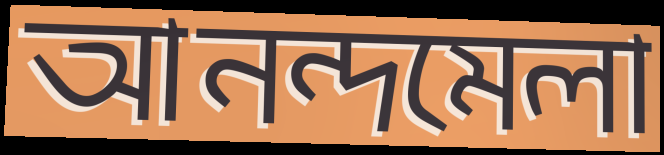
আনন্দমেলা